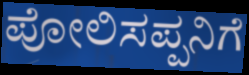
ಪೋಲಿಸಪ್ಪನಿಗೆ